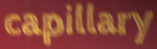
capillary